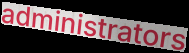
administrators